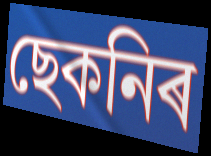
ছেকনিৰ